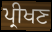
ਪ੍ਰੀਖਣ